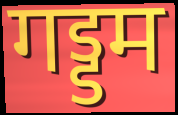
गड्डम